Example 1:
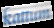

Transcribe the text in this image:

kattum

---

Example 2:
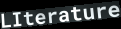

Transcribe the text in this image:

LIterature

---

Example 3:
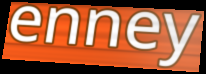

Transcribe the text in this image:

enney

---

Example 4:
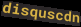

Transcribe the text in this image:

disquscdn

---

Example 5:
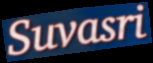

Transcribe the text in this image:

Suvasri